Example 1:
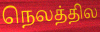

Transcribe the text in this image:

நெலத்தில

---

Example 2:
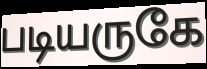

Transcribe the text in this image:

படியருகே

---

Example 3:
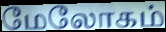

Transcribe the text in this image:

மேலோகம்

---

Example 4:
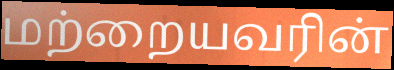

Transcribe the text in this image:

மற்றையவரின்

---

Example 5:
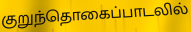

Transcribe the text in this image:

குறுந்தொகைப்பாடலில்